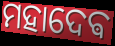
ମହାଦେଵ